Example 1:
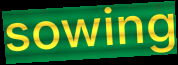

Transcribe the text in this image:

sowing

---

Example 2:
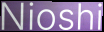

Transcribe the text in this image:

Nioshi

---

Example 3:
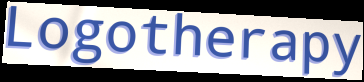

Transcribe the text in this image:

Logotherapy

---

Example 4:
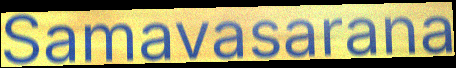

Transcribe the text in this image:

Samavasarana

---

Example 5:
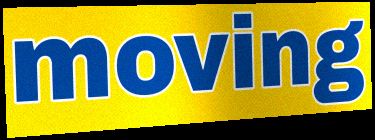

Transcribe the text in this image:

moving